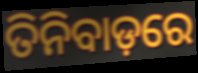
ତିନିବାଡ଼ରେ